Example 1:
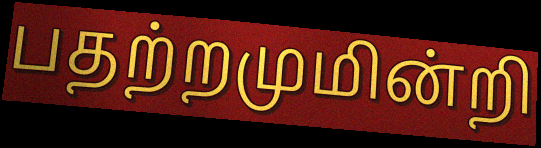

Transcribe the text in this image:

பதற்றமுமின்றி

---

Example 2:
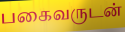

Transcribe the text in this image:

பகைவருடன்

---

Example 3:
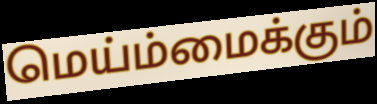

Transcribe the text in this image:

மெய்ம்மைக்கும்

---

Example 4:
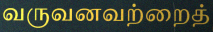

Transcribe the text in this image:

வருவனவற்றைத்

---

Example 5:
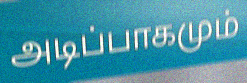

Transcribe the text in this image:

அடிப்பாகமும்